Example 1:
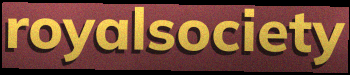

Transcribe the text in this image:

royalsociety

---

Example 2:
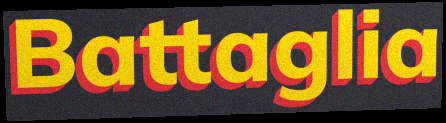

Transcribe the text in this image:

Battaglia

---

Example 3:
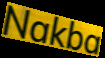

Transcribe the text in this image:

Nakba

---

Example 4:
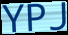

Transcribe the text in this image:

YPJ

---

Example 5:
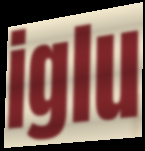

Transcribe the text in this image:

iglu